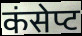
कंसेप्ट